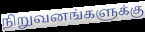
நிறுவனங்களுக்கு